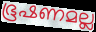
ഭൂഷണമല്ല